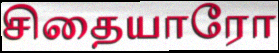
சிதையாரோ